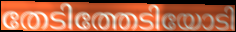
തേടിത്തേടിയോടി